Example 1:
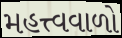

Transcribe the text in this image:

મહત્ત્વવાળો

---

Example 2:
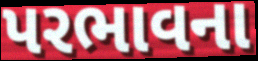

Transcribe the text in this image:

પરભાવના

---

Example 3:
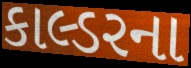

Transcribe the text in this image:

કાલ્ડરના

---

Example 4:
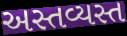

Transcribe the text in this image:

અસ્તવ્યસ્ત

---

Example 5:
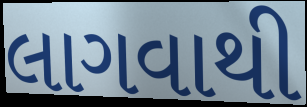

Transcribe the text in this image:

લાગવાથી